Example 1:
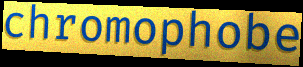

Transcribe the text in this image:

chromophobe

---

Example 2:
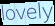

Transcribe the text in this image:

lovely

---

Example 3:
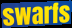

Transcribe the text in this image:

swarfs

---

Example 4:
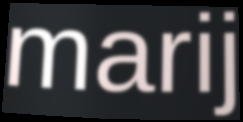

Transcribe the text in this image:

marij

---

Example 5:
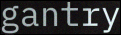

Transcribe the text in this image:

gantry